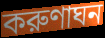
করুণাঘন